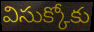
విసుక్కోకు